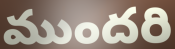
ముందరి